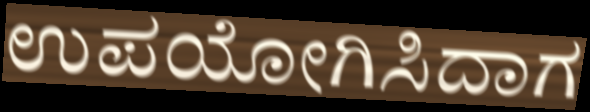
ಉಪಯೋಗಿಸಿದಾಗ